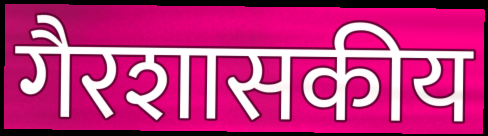
गैरशासकीय